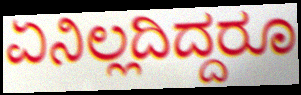
ಏನಿಲ್ಲದಿದ್ದರೂ